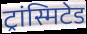
ट्रांस्मिटेड